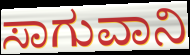
ಸಾಗುವಾನಿ